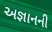
અજ્ઞાનની